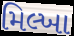
મિલ્ખા